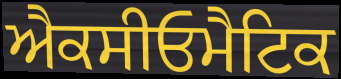
ਐਕਸੀਓਮੈਟਿਕ